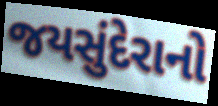
જયસુંદેરાનો